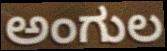
ಅಂಗುಲ